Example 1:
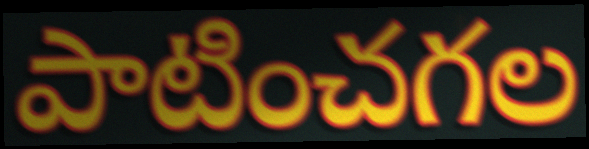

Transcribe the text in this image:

పాటించగల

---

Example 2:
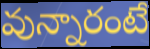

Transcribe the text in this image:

వున్నారంటే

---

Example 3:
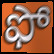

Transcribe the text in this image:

ఫో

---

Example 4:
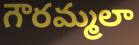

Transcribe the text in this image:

గౌరమ్మలా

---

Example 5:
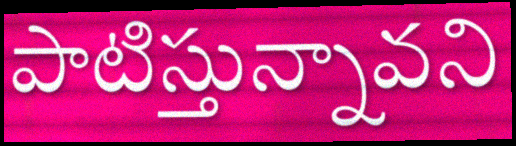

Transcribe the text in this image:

పాటిస్తున్నావని